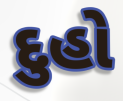
દુહો